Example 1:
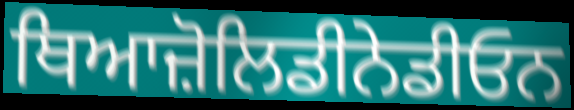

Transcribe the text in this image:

ਥਿਆਜ਼ੋਲਿਡੀਨੇਡੀਓਨ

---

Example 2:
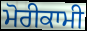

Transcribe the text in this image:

ਮੋਰੀਕਾਮੀ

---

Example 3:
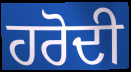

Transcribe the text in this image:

ਹਰੋਦੀ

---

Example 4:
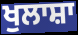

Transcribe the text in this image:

ਖੁਲਾਸ਼ਾ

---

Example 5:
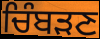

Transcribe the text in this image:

ਚਿੰਬੜਣ